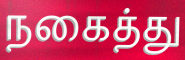
நகைத்து